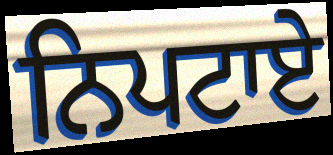
ਨਿਪਟਾਏ